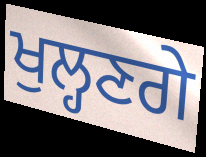
ਖੁਲ੍ਹਣਗੇ